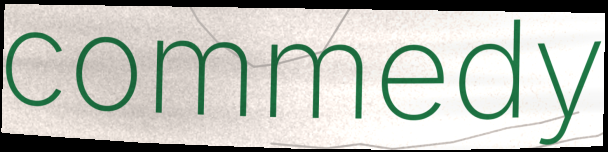
commedy